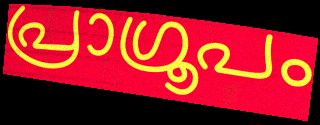
പ്രാഗ്രൂപം